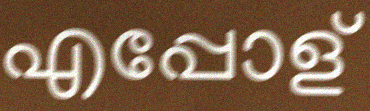
എപ്പോള്